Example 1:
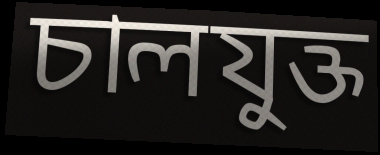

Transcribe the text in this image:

চালযুক্ত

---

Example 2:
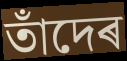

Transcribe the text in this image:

তাঁদেৰ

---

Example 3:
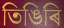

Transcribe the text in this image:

তিঙিৰি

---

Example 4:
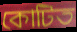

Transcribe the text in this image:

কোটিত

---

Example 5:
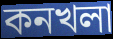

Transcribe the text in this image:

কনখলা